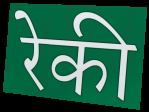
रेकी